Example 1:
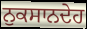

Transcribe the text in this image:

ਨੁਕਸਾਨਦੇਹ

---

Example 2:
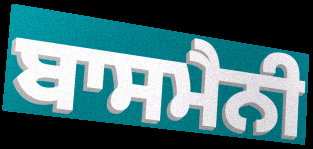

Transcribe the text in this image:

ਬਾਸਮੈਨੀ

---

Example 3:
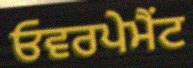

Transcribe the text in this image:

ਓਵਰਪੇਮੈਂਟ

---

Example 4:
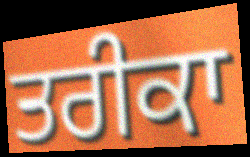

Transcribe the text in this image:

ਤਰੀਕਾ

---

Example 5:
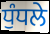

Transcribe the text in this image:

ਧੁੰਧਲੇ